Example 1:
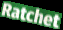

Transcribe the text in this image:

Ratchet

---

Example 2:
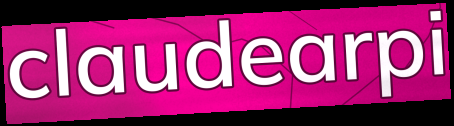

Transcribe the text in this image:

claudearpi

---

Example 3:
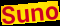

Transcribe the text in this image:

Suno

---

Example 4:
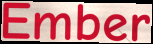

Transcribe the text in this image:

Ember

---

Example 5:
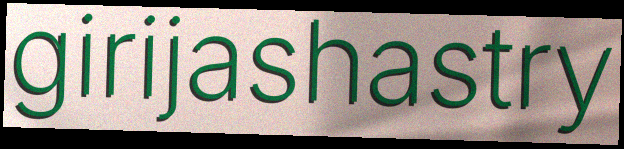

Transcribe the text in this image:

girijashastry